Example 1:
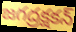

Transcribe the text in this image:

జగద్రక్షకన్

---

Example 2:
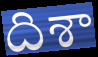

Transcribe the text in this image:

దిశా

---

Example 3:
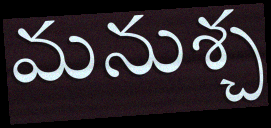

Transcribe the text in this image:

మనుశ్చ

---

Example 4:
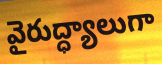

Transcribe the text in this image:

వైరుద్ధ్యాలుగా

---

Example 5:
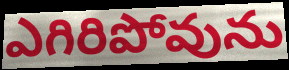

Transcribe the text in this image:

ఎగిరిపోవును